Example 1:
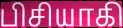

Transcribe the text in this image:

பிசியாகி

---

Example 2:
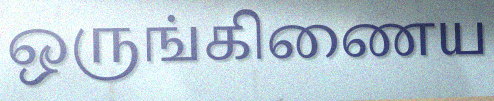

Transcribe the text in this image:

ஒருங்கிணைய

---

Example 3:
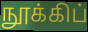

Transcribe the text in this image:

நூக்கிப்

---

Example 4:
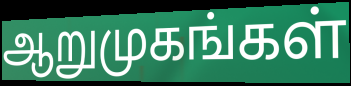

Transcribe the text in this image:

ஆறுமுகங்கள்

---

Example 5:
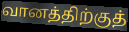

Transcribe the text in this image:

வானத்திற்குத்